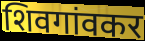
शिवगांवकर